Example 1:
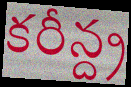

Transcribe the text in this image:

కరీన్ద్ర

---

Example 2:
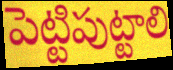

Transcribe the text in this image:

పెట్టిపుట్టాలి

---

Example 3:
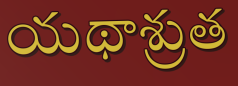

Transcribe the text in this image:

యథాశ్రుత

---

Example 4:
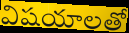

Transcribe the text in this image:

విషయాలతో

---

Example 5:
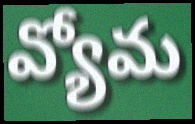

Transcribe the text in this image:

వ్యోమ